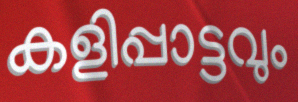
കളിപ്പാട്ടവും